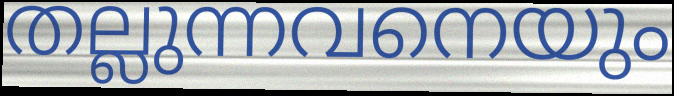
തല്ലുന്നവനെയും